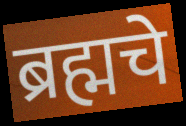
ब्रह्मचे